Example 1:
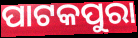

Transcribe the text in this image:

ପାଟକପୁରା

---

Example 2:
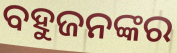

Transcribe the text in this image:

ବହୁଜନଙ୍କର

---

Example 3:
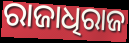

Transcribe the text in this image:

ରାଜାଧିରାଜ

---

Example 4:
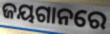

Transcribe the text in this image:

ଜୟଗାନରେ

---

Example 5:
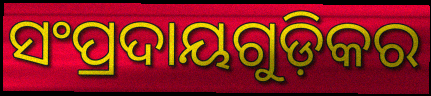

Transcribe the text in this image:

ସଂପ୍ରଦାୟଗୁଡ଼ିକର